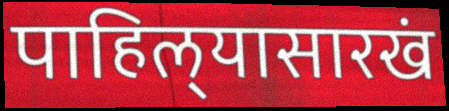
पाहिल्यासारखं